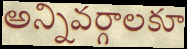
అన్నివర్గాలకూ